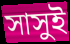
সাসুই